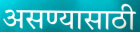
असण्यासाठी